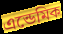
এন্ডেমিক